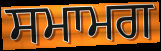
ਸਮਾਮਗ